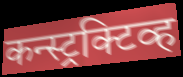
कन्स्ट्रक्टिव्ह